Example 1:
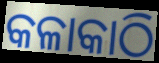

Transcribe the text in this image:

କଳାକାଠି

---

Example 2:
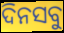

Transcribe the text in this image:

ଦିନସବୁ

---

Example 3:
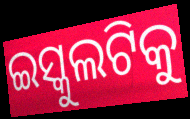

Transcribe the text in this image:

ଇସ୍କୁଲଟିକୁ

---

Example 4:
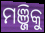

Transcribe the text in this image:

ମଞ୍ଜିକୁ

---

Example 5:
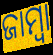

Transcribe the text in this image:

ଜାମ୍ବା